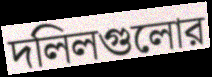
দলিলগুলোর